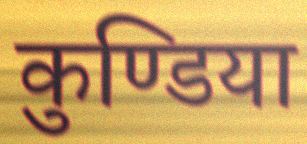
कुण्डिया